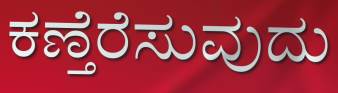
ಕಣ್ತೆರೆಸುವುದು